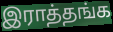
இராத்தங்க